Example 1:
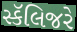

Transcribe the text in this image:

સ્કૅલિજરે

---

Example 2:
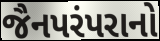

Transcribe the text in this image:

જૈનપરંપરાનો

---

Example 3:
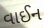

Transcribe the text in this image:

વાઈન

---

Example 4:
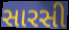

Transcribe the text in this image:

સારસી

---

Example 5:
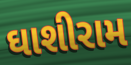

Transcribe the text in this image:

ઘાશીરામ